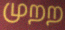
முறற